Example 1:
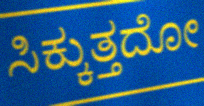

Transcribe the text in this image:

ಸಿಕ್ಕುತ್ತದೋ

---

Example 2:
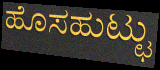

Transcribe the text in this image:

ಹೊಸಹುಟ್ಟು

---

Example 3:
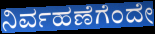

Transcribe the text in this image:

ನಿರ್ವಹಣೆಗೆಂದೇ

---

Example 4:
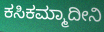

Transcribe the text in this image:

ಕಸಿಕಮ್ಮಾದೀನಿ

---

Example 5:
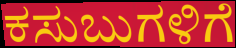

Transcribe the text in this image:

ಕಸುಬುಗಳಿಗೆ